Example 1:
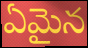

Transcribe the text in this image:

ఏమైన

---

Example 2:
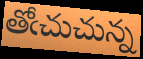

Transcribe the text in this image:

తోఁచుచున్న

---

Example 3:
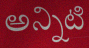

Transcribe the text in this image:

అన్నిటి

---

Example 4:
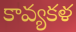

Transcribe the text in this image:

కావ్యకళ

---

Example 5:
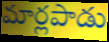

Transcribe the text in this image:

మార్లపాడు